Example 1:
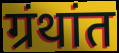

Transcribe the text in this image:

ग्रंथांत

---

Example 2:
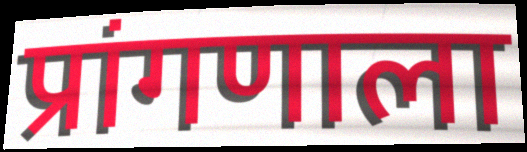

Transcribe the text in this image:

प्रांगणाला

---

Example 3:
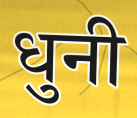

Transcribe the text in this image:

धुनी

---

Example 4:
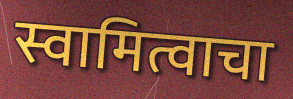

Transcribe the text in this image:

स्वामित्वाचा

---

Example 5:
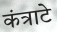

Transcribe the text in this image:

कंत्राटे